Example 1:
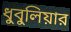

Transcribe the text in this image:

ধুবুলিয়ার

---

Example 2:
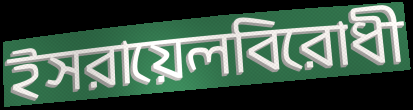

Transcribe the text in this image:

ইসরায়েলবিরোধী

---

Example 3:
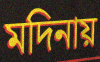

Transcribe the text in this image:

মদিনায়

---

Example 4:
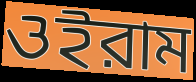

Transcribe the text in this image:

ওইরাম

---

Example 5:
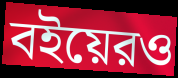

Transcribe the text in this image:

বইয়েরও